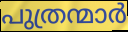
പുത്രന്മാർ